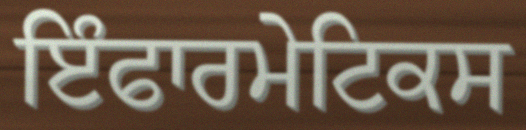
ਇੰਫਾਰਮੇਟਿਕਸ